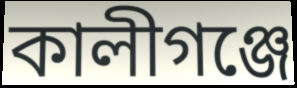
কালীগঞ্জে